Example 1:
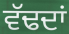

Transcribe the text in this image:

ਵੱਢਦਾਂ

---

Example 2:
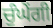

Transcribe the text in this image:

ਚੁੰਘੇਂਗੀ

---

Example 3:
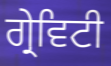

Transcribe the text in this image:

ਗ੍ਰੇਵਿਟੀ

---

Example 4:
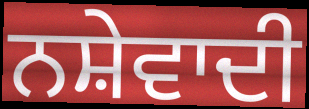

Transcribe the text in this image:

ਨਸ਼ੇਵਾਦੀ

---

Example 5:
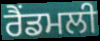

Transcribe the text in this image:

ਰੈਂਡਮਲੀ